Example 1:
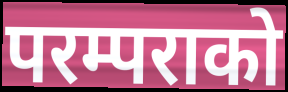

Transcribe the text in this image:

परम्पराको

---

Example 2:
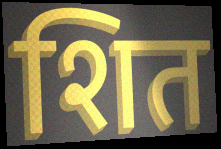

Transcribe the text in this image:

शित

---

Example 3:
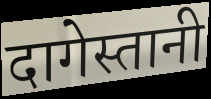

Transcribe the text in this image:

दागेस्तानी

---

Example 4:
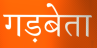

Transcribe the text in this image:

गड़बेता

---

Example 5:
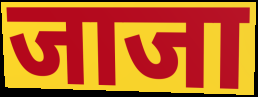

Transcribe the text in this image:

जाजा